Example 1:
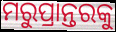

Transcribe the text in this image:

ମରୁପ୍ରାନ୍ତରକୁ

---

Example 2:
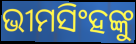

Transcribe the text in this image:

ଭୀମସିଂହଙ୍କୁ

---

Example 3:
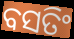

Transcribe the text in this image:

ବସତିଂ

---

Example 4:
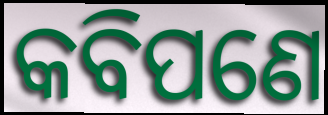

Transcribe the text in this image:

କବିପଣେ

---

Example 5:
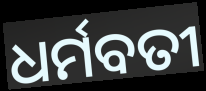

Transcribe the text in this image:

ଧର୍ମବତୀ